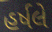
હર્ષલે